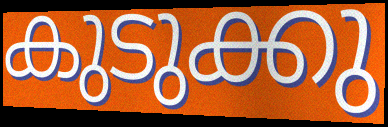
കുടുക്കു